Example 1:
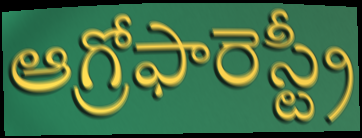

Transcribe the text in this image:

ఆగ్రోఫారెస్ట్రీ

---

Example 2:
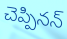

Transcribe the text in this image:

చెప్పినన్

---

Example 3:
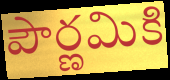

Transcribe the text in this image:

పౌర్ణమికి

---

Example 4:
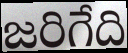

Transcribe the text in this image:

జరిగేది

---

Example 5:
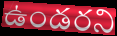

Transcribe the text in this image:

ఉండరని